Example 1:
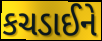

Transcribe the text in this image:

કચડાઈને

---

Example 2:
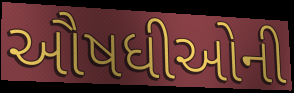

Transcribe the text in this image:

ઔષધીઓની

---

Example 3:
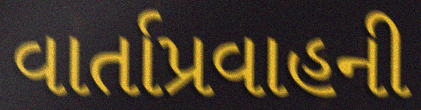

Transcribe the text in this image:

વાર્તાપ્રવાહની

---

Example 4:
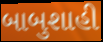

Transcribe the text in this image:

બાબુશાહી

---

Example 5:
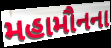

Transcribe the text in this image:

મહામૌનના